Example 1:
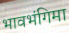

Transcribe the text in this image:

भावभंगिमा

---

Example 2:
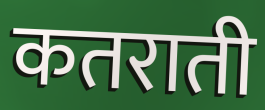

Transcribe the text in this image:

कतराती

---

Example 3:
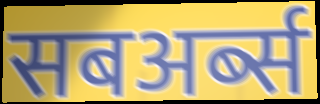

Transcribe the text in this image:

सबअर्ब्स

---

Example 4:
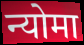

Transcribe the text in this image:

न्योमा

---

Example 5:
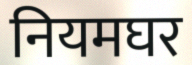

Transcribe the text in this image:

नियमघर